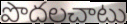
పొదలచాటు